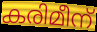
കരിമീന്